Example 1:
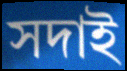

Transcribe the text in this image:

সদাই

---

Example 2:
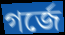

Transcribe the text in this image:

গর্জে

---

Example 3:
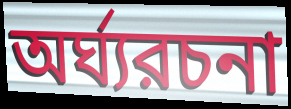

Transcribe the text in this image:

অর্ঘ্যরচনা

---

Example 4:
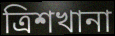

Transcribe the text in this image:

ত্রিশখানা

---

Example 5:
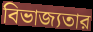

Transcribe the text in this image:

বিভাজ্যতার